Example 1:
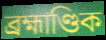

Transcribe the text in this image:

ব্ৰহ্মাণ্ডিক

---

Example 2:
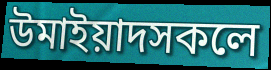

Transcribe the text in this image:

উমাইয়াদসকলে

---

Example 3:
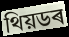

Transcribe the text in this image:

থিয়ডৰ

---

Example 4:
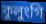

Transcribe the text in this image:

কুলুংগি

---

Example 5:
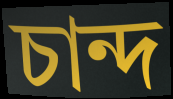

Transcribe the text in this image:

চান্দ